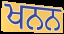
ਖਨਨ